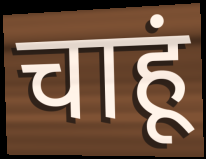
चाहूं